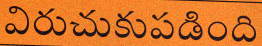
విరుచుకుపడింది